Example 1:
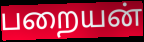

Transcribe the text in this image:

பறையன்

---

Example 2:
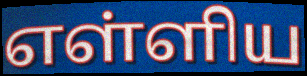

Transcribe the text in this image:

எள்ளிய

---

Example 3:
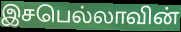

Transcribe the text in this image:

இசபெல்லாவின்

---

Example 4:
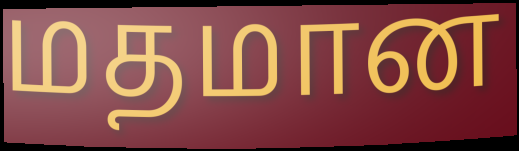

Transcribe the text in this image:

மதமான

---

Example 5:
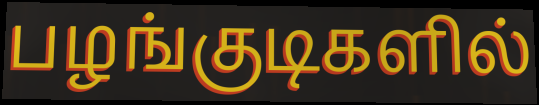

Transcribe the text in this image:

பழங்குடிகளில்